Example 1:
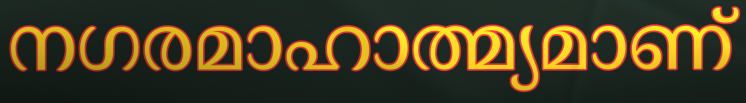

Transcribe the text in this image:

നഗരമാഹാത്മ്യമാണ്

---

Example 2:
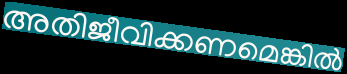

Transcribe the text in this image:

അതിജീവിക്കണമെങ്കിൽ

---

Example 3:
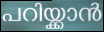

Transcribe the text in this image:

പറിയ്ക്കാൻ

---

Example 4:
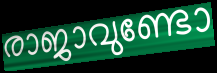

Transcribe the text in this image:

രാജാവുണ്ടോ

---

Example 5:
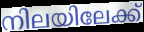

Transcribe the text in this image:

നിലയിലേക്ക്